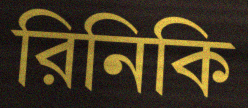
রিনিকি